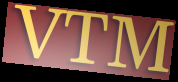
VTM